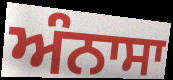
ਅੰਨਾਸਾ